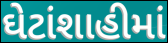
ઘેટાંશાહીમાં